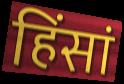
हिंसां